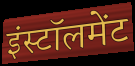
इंस्टॉलमेंट